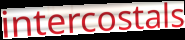
intercostals